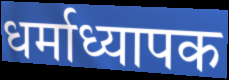
धर्माध्यापक